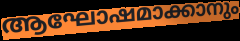
ആഘോഷമാക്കാനും